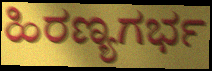
ಹಿರಣ್ಯಗರ್ಭ